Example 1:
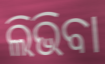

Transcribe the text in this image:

ଲିଭିବା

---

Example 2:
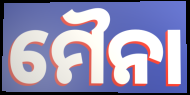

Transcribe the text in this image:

ମୈନା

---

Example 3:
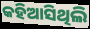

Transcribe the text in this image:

କହିଆସିଥିଲି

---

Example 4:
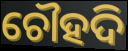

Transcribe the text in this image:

ଚୌହଦି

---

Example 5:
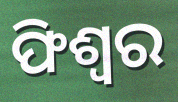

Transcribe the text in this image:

ଫିଶ୍ୱର